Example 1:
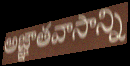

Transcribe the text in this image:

అజ్ఞాతవాసాన్ని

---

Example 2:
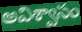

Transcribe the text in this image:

అవిశ్వాసం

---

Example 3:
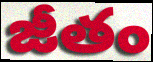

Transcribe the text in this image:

జీతం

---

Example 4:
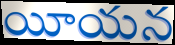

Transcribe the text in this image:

యీయన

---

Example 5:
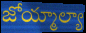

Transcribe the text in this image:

జోయ్మాల్యా